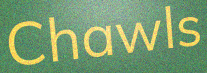
Chawls